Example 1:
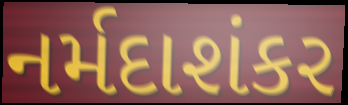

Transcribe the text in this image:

નર્મદાશંકર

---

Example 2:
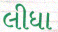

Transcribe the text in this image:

લીધા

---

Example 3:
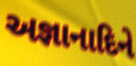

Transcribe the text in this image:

અજ્ઞાનાદિને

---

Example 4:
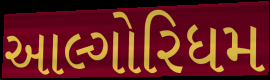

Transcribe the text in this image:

આલ્ગોરિધમ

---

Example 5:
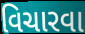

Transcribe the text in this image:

વિચારવા